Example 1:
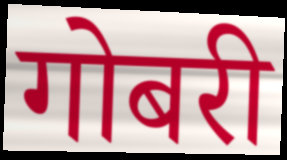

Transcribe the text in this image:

गोबरी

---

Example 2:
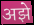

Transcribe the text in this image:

अझे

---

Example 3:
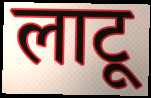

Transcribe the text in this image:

लाटू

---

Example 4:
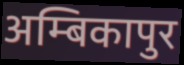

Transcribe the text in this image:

अम्बिकापुर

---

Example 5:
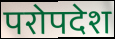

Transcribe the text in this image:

परोपदेश